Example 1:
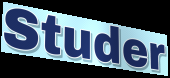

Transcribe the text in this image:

Studer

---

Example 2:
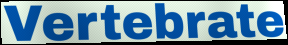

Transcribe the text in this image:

Vertebrate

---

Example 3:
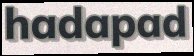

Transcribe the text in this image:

hadapad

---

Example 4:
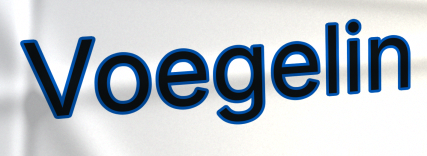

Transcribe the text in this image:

Voegelin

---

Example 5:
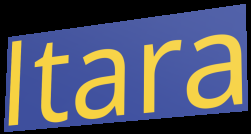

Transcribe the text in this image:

Itara